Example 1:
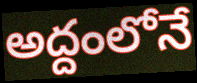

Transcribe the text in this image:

అద్దంలోనే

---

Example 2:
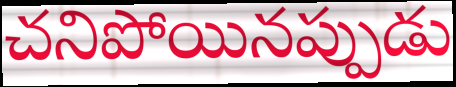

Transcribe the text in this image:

చనిపోయినప్పుడు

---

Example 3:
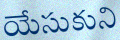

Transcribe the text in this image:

యేసుకుని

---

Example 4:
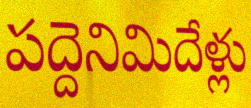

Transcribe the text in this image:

పద్దెనిమిదేళ్లు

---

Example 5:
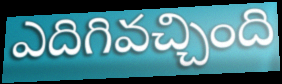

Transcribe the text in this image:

ఎదిగివచ్చింది